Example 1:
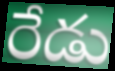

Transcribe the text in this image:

రేడు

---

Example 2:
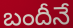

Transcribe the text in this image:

బందీనే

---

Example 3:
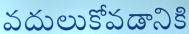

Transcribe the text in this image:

వదులుకోవడానికి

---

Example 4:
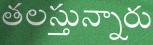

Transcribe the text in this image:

తలస్తున్నారు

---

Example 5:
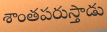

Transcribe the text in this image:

శాంతపరుస్తాడు